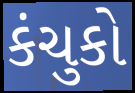
કંચુકો